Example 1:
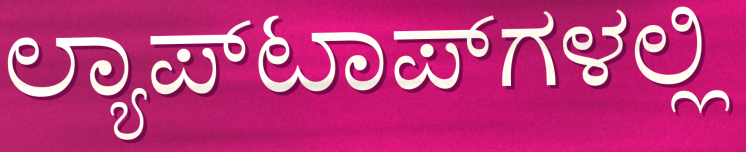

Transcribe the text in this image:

ಲ್ಯಾಪ್‌ಟಾಪ್‌ಗಳಲ್ಲಿ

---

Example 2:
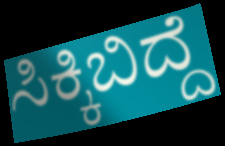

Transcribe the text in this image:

ಸಿಕ್ಕಿಬಿದ್ದೆ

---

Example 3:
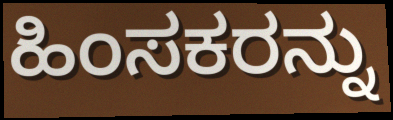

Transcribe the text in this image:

ಹಿಂಸಕರನ್ನು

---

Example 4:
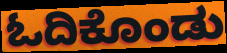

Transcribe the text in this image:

ಓದಿಕೊಂಡು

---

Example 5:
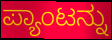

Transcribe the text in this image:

ಪ್ಯಾಂಟನ್ನು